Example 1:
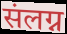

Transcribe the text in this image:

संलग्न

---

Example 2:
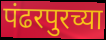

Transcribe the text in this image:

पंढरपुरच्या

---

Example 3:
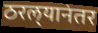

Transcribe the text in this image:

ठरल्यानंतर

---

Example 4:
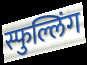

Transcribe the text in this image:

स्फुल्लिंग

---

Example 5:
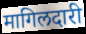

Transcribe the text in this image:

मागिलदारी